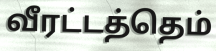
வீரட்டத்தெம்